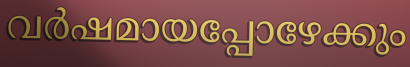
വർഷമായപ്പോഴേക്കും